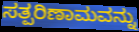
ಸತ್ಪರಿಣಾಮವನ್ನು